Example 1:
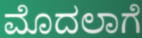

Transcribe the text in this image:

ಮೊದಲಾಗೆ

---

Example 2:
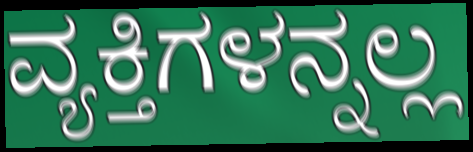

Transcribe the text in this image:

ವ್ಯಕ್ತಿಗಳನ್ನಲ್ಲ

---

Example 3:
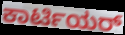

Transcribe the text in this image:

ಕಾರ್ಟಿಯರ್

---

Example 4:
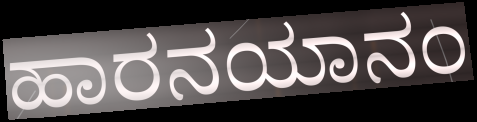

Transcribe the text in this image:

ಹಾರನಯಾನಂ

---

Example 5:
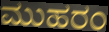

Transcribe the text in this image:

ಮುಹರಂ